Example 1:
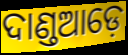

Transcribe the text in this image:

ଦାଣ୍ଡଆଡ଼େ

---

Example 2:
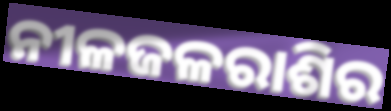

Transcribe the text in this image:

ନୀଳଜଳରାଶିର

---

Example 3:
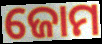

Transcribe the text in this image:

ଜୋମ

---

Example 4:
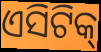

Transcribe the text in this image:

ଏସିଟିକ୍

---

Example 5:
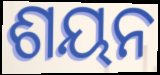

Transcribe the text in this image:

ଶୟନ